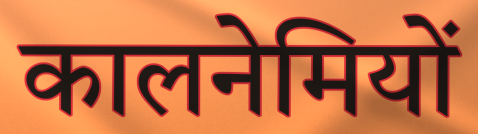
कालनेमियों